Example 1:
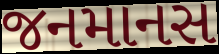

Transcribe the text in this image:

જનમાનસ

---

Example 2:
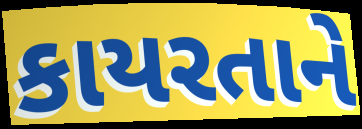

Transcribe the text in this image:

કાયરતાને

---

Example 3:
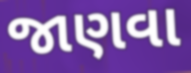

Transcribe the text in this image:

જાણવા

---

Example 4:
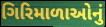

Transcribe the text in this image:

ગિરિમાળાઓનું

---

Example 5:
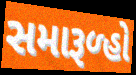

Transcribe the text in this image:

સમારૂળ્હો